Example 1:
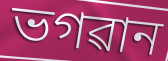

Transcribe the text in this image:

ভগৱান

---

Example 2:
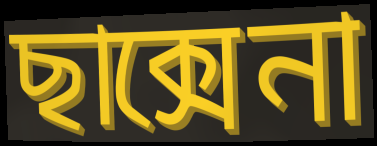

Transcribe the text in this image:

ছাক্সেনা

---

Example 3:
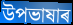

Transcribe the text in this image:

উপভাষাৰ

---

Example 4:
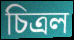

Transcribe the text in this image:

চিত্ৰল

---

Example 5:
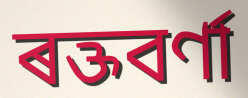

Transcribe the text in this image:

ৰক্তবৰ্ণা